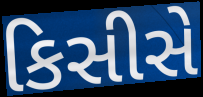
કિસીસે